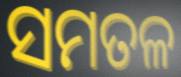
ସମତଳ